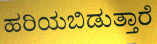
ಹರಿಯಬಿಡುತ್ತಾರೆ